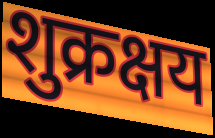
शुक्रक्षय